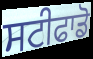
ਸਟੀਫਾਡੋ